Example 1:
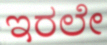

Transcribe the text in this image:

ಇರಲೇ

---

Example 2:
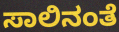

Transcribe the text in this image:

ಸಾಲಿನಂತೆ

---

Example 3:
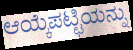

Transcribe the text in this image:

ಆಯ್ಕೆಪಟ್ಟಿಯನ್ನು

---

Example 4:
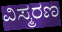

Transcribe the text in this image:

ವಿಸ್ಮರಣ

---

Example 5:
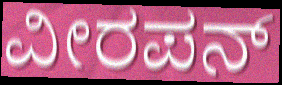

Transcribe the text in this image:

ವೀರಪನ್